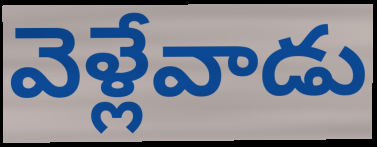
వెళ్లేవాడు